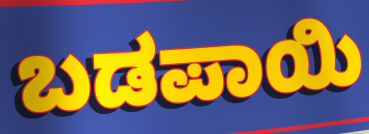
ಬಡಪಾಯಿ